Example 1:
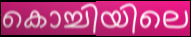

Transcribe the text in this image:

കൊച്ചിയിലെ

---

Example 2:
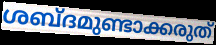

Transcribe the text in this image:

ശബ്ദമുണ്ടാക്കരുത്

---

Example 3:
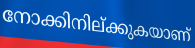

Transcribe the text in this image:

നോക്കിനില്ക്കുകയാണ്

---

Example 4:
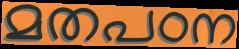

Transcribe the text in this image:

മതപഠന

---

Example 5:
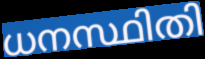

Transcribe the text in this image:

ധനസ്ഥിതി